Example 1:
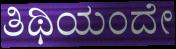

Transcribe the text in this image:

ತಿಥಿಯಂದೇ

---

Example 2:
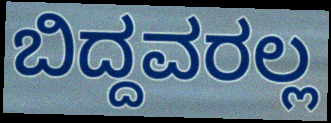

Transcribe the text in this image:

ಬಿದ್ದವರಲ್ಲ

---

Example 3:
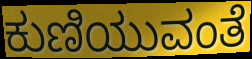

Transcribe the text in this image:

ಕುಣಿಯುವಂತೆ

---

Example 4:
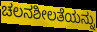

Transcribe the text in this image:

ಚಲನಶೀಲತೆಯನ್ನು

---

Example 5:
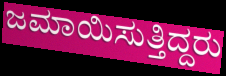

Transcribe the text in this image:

ಜಮಾಯಿಸುತ್ತಿದ್ದರು